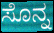
ಸೊನ್ನ